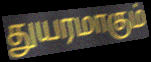
துயரமாகும்